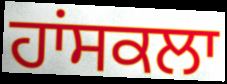
ਹਾਂਸਕਲਾ